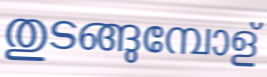
തുടങ്ങുമ്പോള്